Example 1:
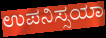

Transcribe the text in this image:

ಉಪನಿಸ್ಸಯಾ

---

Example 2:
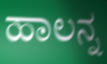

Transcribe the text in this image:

ಹಾಲನ್ನ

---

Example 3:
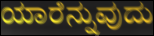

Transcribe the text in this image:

ಯಾರೆನ್ನುವುದು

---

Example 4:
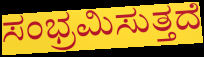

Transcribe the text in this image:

ಸಂಭ್ರಮಿಸುತ್ತದೆ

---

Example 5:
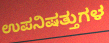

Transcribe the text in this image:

ಉಪನಿಷತ್ತುಗಳ